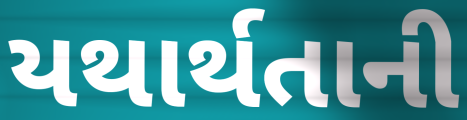
યથાર્થતાની